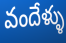
వందేళ్ళు